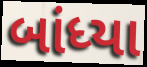
બાંધ્યા